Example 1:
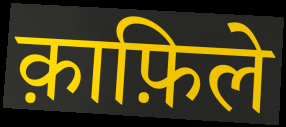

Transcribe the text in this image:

क़ाफ़िले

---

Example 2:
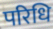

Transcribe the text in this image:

परिधि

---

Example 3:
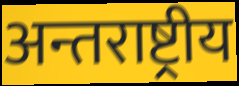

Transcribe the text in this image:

अन्तराष्ट्रीय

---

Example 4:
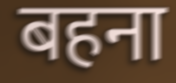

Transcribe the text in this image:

बहना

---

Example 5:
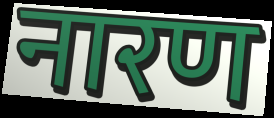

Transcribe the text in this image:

नारण